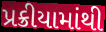
પ્રક્રીયામાંથી